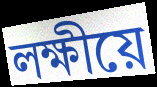
লক্ষীয়ে